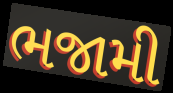
ભજામી